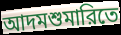
আদমশুমারিতে